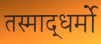
तस्माद्धर्मो